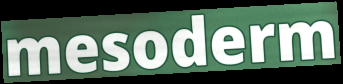
mesoderm